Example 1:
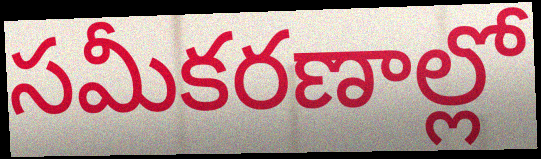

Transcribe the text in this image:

సమీకరణాల్లో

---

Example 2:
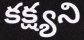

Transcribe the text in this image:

కక్ష్యని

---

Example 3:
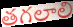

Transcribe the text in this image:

తగలాలి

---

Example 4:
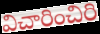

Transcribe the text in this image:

విచారించిరి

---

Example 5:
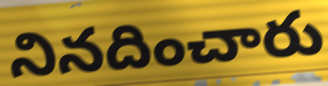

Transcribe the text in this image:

నినదించారు